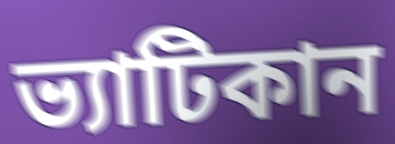
ভ্যাটিকান